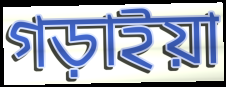
গড়াইয়া